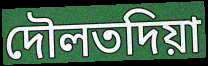
দৌলতদিয়া